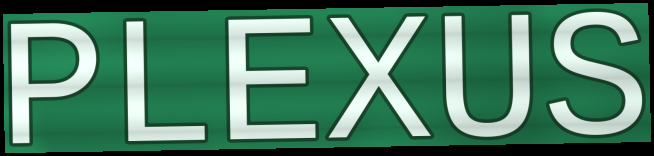
PLEXUS